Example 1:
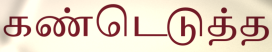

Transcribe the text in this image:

கண்டெடுத்த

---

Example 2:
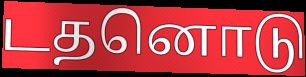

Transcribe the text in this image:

டதனொடு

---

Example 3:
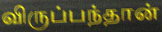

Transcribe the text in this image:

விருப்பந்தான்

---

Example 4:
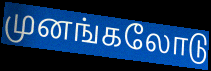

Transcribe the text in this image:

முனங்கலோடு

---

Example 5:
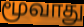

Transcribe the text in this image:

மூவாது